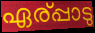
ഏര്പ്പാടു